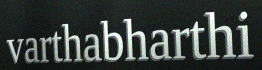
varthabharthi